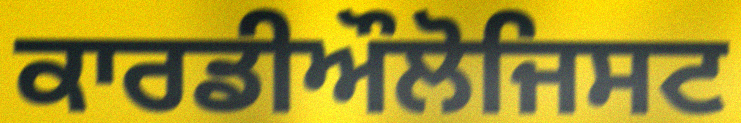
ਕਾਰਡੀਔਲੋਜਿਸਟ